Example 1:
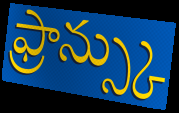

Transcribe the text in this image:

ఫ్రాన్స్కు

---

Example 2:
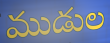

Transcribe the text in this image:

ముడుల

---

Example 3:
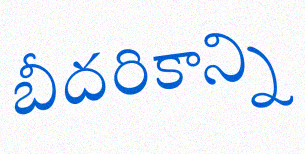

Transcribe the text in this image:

బీదరికాన్ని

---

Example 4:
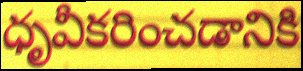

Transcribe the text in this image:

ధృవీకరించడానికి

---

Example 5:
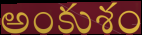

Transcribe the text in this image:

అంకుశం